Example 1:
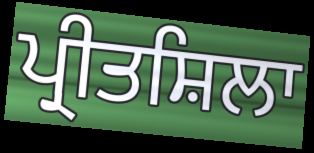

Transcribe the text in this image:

ਪ੍ਰੀਤਸ਼ਿਲਾ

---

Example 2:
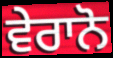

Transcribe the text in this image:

ਵੇਰਾਨੋ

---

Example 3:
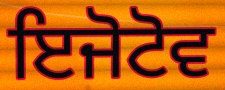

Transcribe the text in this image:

ਇਜੋਟੋਵ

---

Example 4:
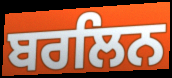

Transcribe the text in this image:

ਬਰਲਿਨ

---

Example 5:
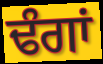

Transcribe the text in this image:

ਢੰਗਾਂ